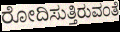
ರೋದಿಸುತ್ತಿರುವಂತೆ